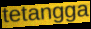
tetangga